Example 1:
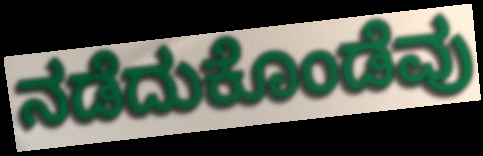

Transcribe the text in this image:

ನಡೆದುಕೊಂಡೆವು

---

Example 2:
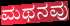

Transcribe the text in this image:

ಮಥನವು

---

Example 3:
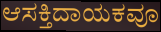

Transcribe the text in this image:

ಆಸಕ್ತಿದಾಯಕವೂ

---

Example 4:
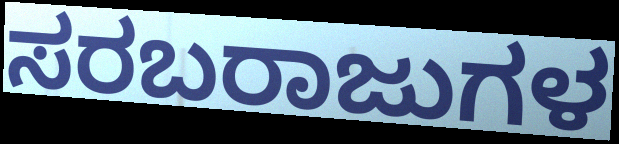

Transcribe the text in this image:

ಸರಬರಾಜುಗಳ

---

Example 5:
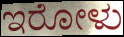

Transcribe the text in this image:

ಇರೋಳು